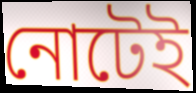
নোটেই